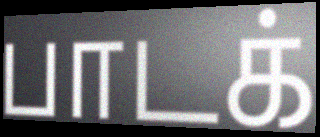
பாடக்